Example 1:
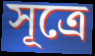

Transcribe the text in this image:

সূত্ৰে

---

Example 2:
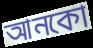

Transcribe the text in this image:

আনকো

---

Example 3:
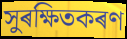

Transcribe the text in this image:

সুৰক্ষিতকৰণ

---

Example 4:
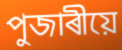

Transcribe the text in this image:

পুজাৰীয়ে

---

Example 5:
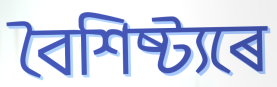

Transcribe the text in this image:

বৈশিষ্ট্যৰে